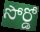
సోర్డో